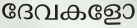
ദേവകളോ